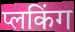
प्लकिंग